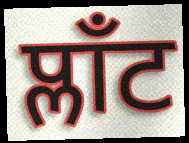
प्लाँट